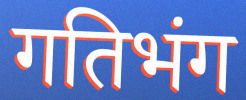
गतिभंग